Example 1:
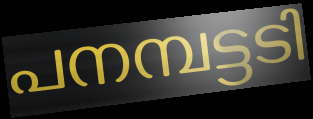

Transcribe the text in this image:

പനമ്പട്ടടി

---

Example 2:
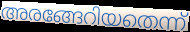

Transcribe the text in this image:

അരങ്ങേറിയതെന്ന്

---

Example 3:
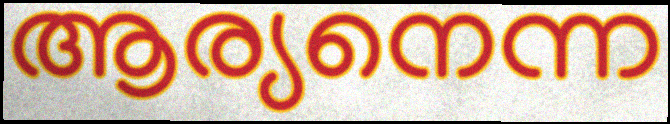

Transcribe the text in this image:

ആര്യനെന്ന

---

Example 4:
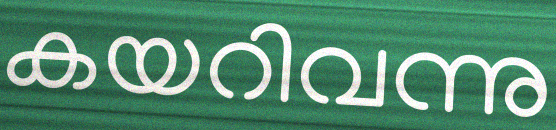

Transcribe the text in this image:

കയറിവന്നു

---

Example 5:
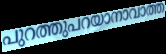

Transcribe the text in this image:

പുറത്തുപറയാനാവാത്ത